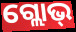
ଗ୍ଲୋଭ୍